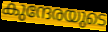
കുന്ദേരയുടെ